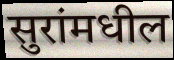
सुरांमधील